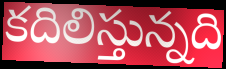
కదిలిస్తున్నది